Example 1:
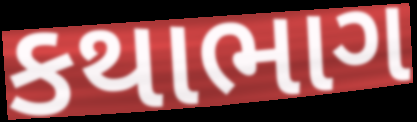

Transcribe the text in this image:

કથાભાગ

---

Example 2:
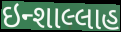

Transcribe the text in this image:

ઇન્શાલ્લાહ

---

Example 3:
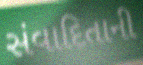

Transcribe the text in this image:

સંવાદિતાની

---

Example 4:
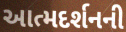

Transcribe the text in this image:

આત્મદર્શનની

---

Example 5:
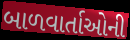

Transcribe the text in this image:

બાળવાર્તાઓની